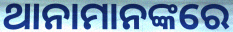
ଥାନାମାନଙ୍କରେ